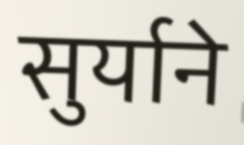
सुर्याने